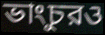
ভাংচুরও